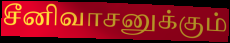
சீனிவாசனுக்கும்